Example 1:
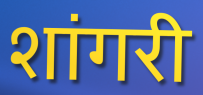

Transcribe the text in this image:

शांगरी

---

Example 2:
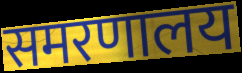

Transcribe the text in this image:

समरणालय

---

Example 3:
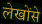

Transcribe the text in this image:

लेखोंसे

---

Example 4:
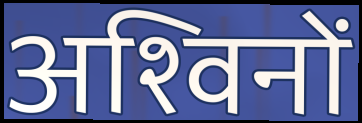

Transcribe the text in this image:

अश्विनों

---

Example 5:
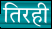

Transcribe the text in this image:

तिरही